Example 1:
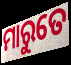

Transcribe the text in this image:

ମାରୁତେ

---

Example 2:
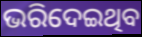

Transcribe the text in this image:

ଭରିଦେଇଥିବ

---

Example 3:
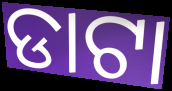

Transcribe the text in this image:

ଡାଟା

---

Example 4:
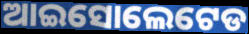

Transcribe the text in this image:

ଆଇସୋଲେଟେଡ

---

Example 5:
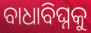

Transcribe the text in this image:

ବାଧାବିଘ୍ନକୁ